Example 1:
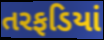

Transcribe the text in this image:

તરફડિયાં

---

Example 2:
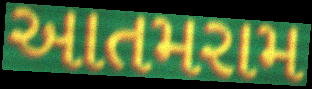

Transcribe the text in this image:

આતમરામ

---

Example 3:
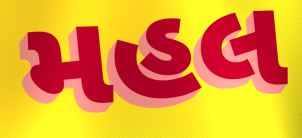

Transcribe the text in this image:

મહલ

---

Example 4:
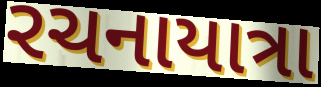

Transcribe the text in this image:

રચનાયાત્રા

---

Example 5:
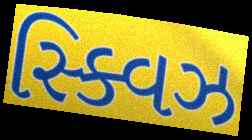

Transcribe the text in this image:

સ્ક્વિઝ